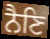
ਨੈਣਿ